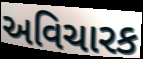
અવિચારક